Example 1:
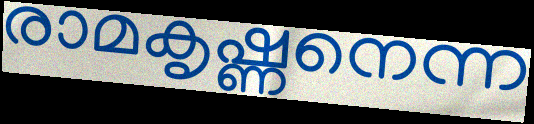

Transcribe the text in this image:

രാമകൃഷ്ണനെന്ന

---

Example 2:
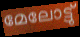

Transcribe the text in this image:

മേലോട്ടു്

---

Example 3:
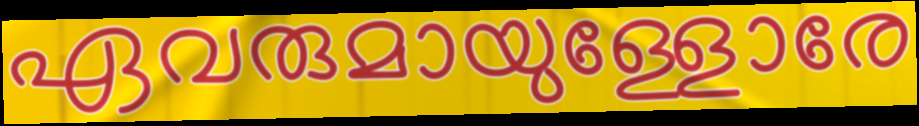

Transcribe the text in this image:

ഏവരുമായുള്ളോരേ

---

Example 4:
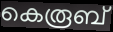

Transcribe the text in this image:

കെരൂബ്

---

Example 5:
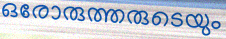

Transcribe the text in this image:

ഒരോരുത്തരുടെയും